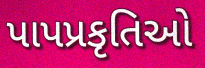
પાપપ્રકૃતિઓ